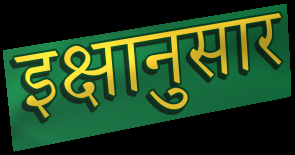
इक्षानुसार